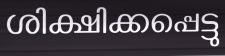
ശിക്ഷിക്കപ്പെട്ടു